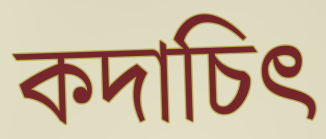
কদাচিৎ